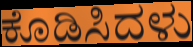
ಕೊಡಿಸಿದಳು